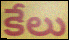
కేలు